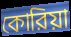
কোরিয়া